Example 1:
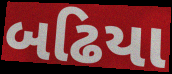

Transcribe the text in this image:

બઢિયા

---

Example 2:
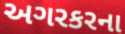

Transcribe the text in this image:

અગરકરના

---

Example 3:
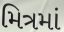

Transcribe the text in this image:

મિત્રમાં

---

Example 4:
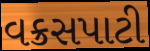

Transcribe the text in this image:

વક્રસપાટી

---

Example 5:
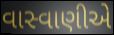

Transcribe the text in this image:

વાસ્વાણીએ